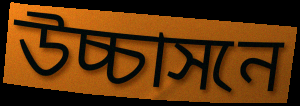
উচ্চাসনে